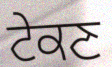
ਟੇਕਣ